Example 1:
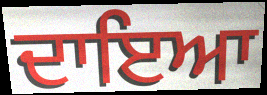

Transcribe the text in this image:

ਦਾਇਆ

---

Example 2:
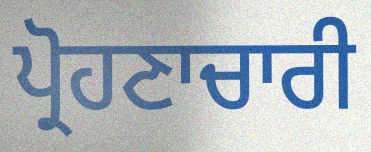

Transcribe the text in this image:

ਪ੍ਰੋਹਣਾਚਾਰੀ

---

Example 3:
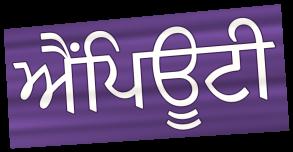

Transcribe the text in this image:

ਐਂਪਿਊਟੀ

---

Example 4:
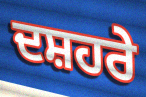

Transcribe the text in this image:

ਦਸ਼ਹਰੇ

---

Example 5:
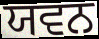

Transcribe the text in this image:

ਯਵਨ